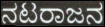
ನಟರಾಜನ